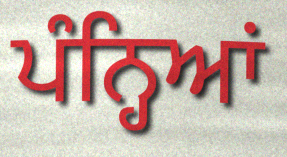
ਪੰਨ੍ਹਿਆਂ